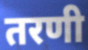
तरणी